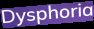
Dysphoria